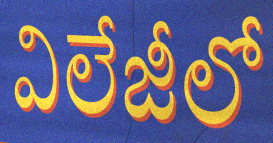
విలేజీలో